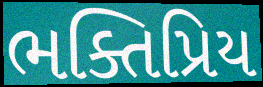
ભક્તિપ્રિય